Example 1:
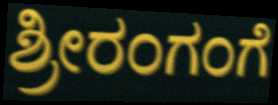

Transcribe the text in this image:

ಶ್ರೀರಂಗಂಗೆ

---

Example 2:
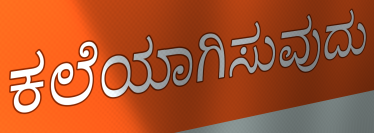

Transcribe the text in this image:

ಕಲೆಯಾಗಿಸುವುದು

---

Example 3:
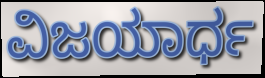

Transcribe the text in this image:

ವಿಜಯಾರ್ಧ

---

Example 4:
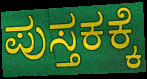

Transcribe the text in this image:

ಪುಸ್ತಕಕ್ಕೆ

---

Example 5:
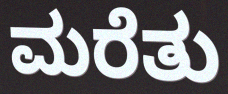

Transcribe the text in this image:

ಮರೆತು